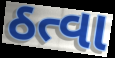
ઠત્વા